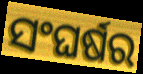
ସଂଘର୍ଷର